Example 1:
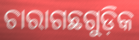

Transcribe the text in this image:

ଚାରାଗଛଗୁଡ଼ିକ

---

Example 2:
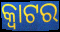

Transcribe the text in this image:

କ୍ୱାଟର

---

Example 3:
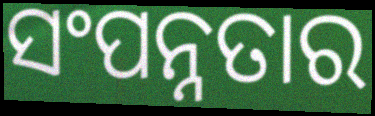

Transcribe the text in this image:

ସଂପନ୍ନତାର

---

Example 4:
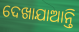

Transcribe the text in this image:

ଦେଖାଯାଆନ୍ତି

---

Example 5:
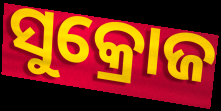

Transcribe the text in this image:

ସୁକ୍ରୋଜ